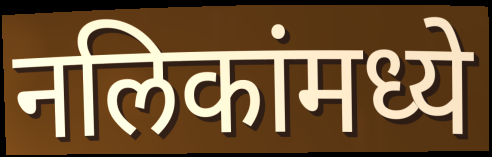
नलिकांमध्ये